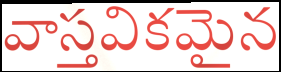
వాస్తవికమైన